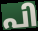
പി